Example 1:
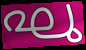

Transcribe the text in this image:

ഘു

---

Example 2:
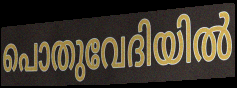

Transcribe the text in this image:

പൊതുവേദിയിൽ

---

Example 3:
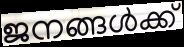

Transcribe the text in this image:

ജനങ്ങൾക്ക്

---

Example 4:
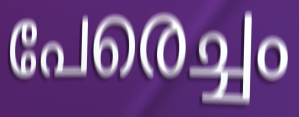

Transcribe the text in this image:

പേരെച്ചം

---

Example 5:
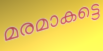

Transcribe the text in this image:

മരമാകട്ടെ